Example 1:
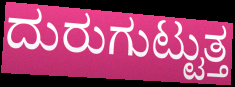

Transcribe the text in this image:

ದುರುಗುಟ್ಟುತ್ತ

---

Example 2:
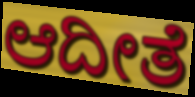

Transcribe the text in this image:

ಆದೀತೆ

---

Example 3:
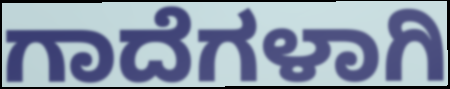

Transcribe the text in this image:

ಗಾದೆಗಳಾಗಿ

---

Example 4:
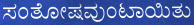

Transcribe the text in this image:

ಸಂತೋಷವುಂಟಾಯಿತು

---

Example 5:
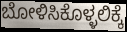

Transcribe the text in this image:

ಬೋಳಿಸಿಕೊಳ್ಳಲಿಕ್ಕೆ